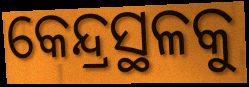
କେନ୍ଦ୍ରସ୍ଥଳକୁ